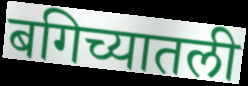
बगिच्यातली